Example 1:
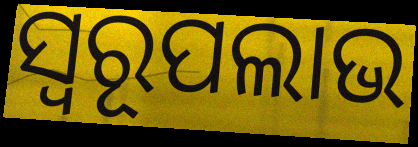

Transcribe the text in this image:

ସ୍ବରୂପଲାଭ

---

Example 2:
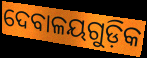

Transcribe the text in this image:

ଦେବାଳୟଗୁଡ଼ିକ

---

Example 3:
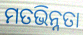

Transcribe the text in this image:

ମତଭିନ୍ନତା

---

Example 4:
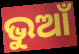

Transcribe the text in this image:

ଭୁଆଁ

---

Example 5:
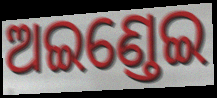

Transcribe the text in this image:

ଅଇଣ୍ଡେଇ